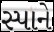
સ્પાને